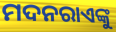
ମଦନରାଏଙ୍କୁ